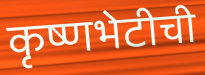
कृष्णभेटीची